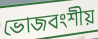
ভোজবংশীয়